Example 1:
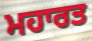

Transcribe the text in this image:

ਮਹਾਰਤ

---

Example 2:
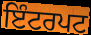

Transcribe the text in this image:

ਇੰਟਰਪਟ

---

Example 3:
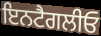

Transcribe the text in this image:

ਇਨਟੈਗਲੀਓ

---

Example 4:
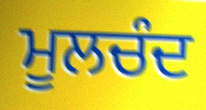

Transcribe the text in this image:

ਮੂਲਚੰਦ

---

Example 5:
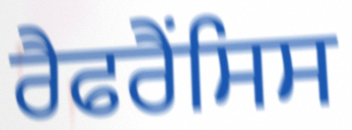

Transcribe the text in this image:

ਰੈਫਰੈਂਸਿਸ